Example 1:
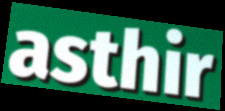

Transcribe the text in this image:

asthir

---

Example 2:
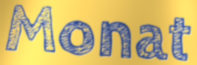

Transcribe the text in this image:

Monat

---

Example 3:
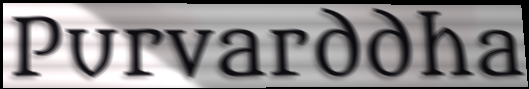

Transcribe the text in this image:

Purvarddha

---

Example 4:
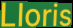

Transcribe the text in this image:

Lloris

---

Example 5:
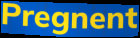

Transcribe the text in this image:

Pregnent